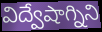
విద్వేషాగ్నిని